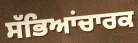
ਸੱਭਿਆਂਚਾਰਕ